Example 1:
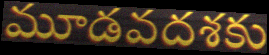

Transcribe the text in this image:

మూడవదశకు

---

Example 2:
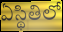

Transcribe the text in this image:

ఏస్థితిలో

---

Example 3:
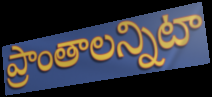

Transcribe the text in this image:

ప్రాంతాలన్నిటా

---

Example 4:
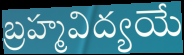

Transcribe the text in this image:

బ్రహ్మవిద్యయే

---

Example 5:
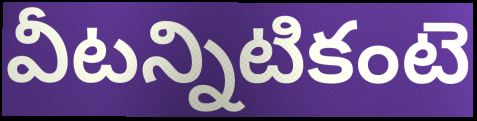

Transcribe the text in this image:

వీటన్నిటికంటె